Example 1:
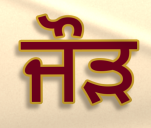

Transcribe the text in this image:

ਜੌੜ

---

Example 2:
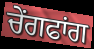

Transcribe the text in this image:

ਚੇਂਗਫਾਂਗ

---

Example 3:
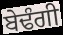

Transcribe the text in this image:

ਬੇਢੰਗੀ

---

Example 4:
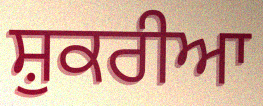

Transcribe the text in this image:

ਸ਼ੁਕਰੀਆ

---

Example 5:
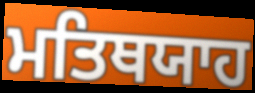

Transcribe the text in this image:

ਮਤਿਥਯਾਹ